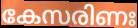
കേസരിണഃ